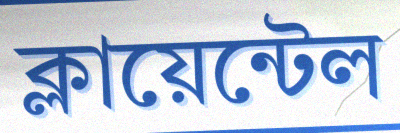
ক্লায়েন্টেল